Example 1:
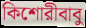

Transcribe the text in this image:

কিশোরীবাবু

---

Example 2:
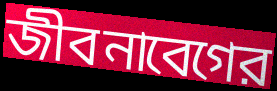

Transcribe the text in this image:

জীবনাবেগের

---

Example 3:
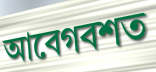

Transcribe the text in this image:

আবেগবশত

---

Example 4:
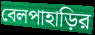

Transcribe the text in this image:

বেলপাহাড়ির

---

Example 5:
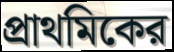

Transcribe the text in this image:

প্রাথমিকের